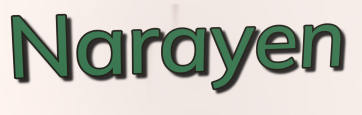
Narayen